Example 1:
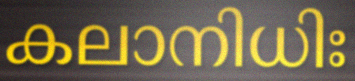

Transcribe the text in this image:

കലാനിധിഃ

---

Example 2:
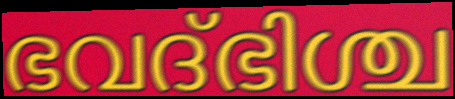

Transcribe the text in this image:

ഭവദ്ഭിശ്ച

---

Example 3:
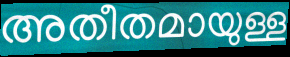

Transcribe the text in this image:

അതീതമായുള്ള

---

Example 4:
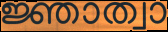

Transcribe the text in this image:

ജ്ഞാത്വാ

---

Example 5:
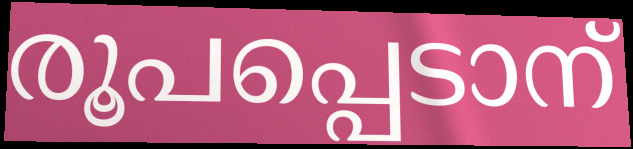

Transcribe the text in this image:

രൂപപ്പെടാന്